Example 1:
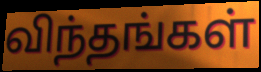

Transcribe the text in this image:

விந்தங்கள்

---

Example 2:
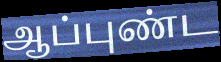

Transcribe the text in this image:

ஆப்புண்ட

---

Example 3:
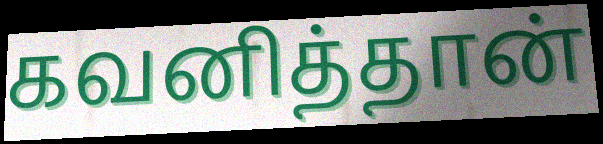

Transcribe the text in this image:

கவனித்தான்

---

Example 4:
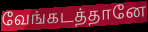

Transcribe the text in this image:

வேங்கடத்தானே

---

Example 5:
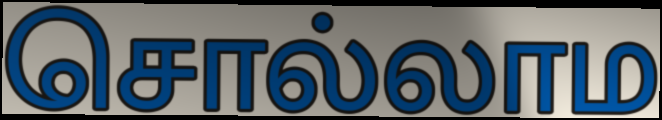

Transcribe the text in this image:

சொல்லாம